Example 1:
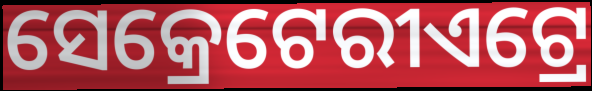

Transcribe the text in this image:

ସେକ୍ରେଟେରୀଏଟ୍ରେ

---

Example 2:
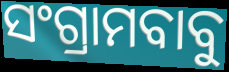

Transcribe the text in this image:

ସଂଗ୍ରାମବାବୁ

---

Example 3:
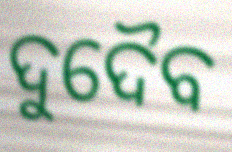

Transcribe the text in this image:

ଦୁଦୈବ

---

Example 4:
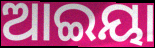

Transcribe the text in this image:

ଆଇୟା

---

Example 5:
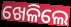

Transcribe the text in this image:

ଖେଳିଲେ